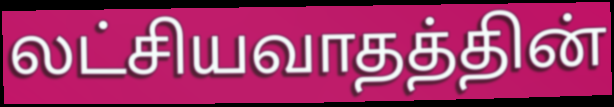
லட்சியவாதத்தின்